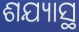
ଶଯ୍ୟାସ୍ଥ